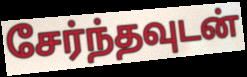
சேர்ந்தவுடன்